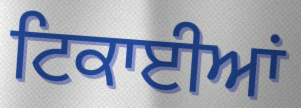
ਟਿਕਾਈਆਂ